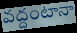
వద్దంటానా